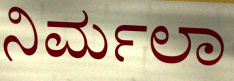
ನಿರ್ಮಲಾ